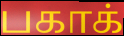
பகாக்